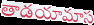
తాడయామాస